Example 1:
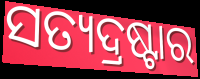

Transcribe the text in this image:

ସତ୍ୟଦ୍ରଷ୍ଟାର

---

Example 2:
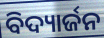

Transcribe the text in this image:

ବିଦ୍ୟାର୍ଜନ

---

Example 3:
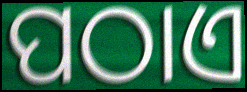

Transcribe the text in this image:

ପଠାଏ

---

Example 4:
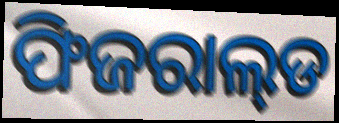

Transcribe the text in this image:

ଫିଜରାଲ୍‌ଡ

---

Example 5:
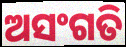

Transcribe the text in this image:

ଅସଂଗତି